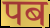
पब